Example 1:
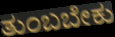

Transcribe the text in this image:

ತುಂಬಬೇಕು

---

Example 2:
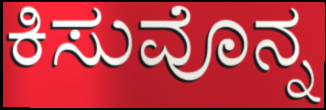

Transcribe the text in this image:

ಕಿಸುವೊನ್ನ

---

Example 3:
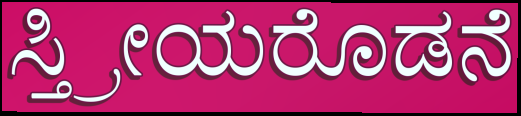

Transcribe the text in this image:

ಸ್ತ್ರೀಯರೊಡನೆ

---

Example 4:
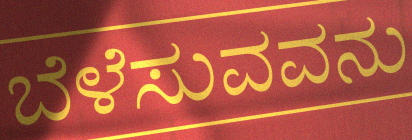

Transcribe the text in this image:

ಬೆಳೆಸುವವನು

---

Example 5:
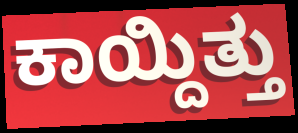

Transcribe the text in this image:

ಕಾಯ್ದಿತ್ತು